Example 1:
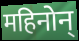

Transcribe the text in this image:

महिनोन्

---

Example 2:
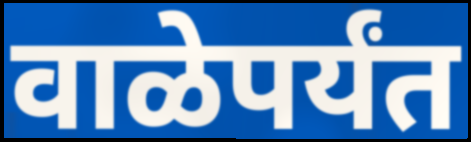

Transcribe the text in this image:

वाळेपर्यंत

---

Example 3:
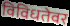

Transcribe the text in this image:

विविधतेवर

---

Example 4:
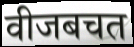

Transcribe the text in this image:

वीजबचत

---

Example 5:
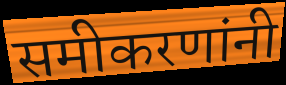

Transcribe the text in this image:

समीकरणांनी